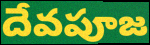
దేవపూజ